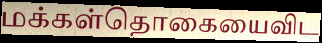
மக்கள்தொகையைவிட